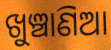
ଖୁଞ୍ଚାଣିଆ